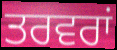
ਤਰਵਰਾਂ